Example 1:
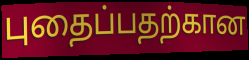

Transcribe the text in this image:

புதைப்பதற்கான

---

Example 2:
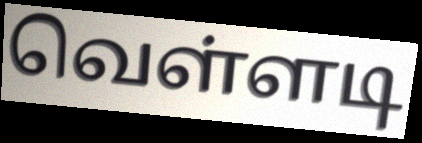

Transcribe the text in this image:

வெள்ளடி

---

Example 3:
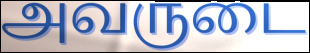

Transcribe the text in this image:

அவருடை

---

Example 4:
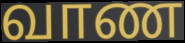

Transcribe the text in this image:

வாண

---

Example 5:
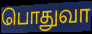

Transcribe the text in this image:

பொதுவா